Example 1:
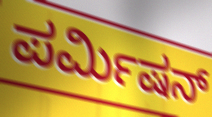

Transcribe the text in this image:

ಪರ್ಮಿಷನ್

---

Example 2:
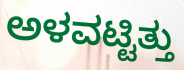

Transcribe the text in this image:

ಅಳವಟ್ಟಿತ್ತು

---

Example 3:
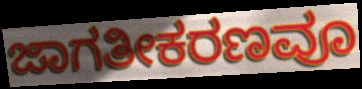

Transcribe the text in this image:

ಜಾಗತೀಕರಣವೂ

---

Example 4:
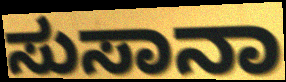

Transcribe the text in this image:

ಸುಸಾನಾ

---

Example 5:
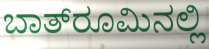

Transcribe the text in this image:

ಬಾತ್‌ರೂಮಿನಲ್ಲಿ